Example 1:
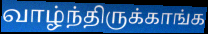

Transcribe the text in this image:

வாழ்ந்திருக்காங்க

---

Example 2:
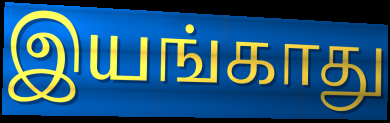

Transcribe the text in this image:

இயங்காது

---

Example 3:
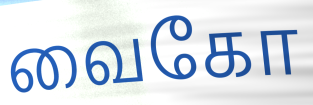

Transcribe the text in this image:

வைகோ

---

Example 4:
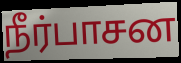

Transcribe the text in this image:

நீர்பாசன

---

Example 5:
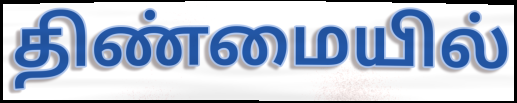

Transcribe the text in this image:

திண்மையில்